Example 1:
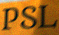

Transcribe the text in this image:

PSL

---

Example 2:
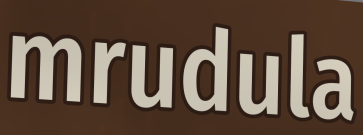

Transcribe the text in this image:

mrudula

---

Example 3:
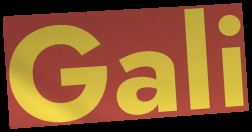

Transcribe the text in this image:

Gali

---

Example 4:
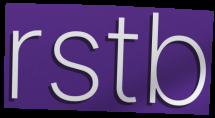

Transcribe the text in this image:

rstb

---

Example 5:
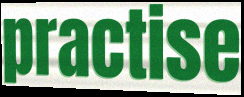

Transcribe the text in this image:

practise